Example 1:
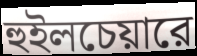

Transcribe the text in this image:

হুইলচেয়ারে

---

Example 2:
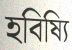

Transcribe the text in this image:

হবিষ্যি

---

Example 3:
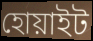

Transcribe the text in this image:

হোয়াইট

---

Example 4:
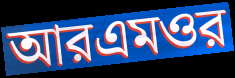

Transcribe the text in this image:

আরএমওর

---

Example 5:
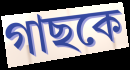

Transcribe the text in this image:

গাছকে